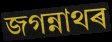
জগন্নাথৰ